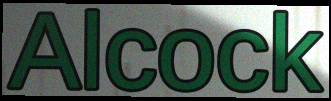
Alcock